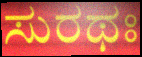
ಸುರಥಃ